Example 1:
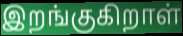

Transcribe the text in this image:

இறங்குகிறாள்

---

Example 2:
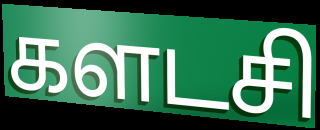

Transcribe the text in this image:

களடசி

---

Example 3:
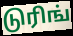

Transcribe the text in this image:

டுரிங்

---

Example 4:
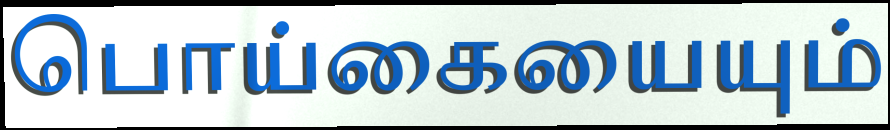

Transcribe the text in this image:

பொய்கையையும்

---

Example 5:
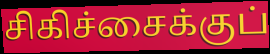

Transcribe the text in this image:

சிகிச்சைக்குப்